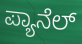
ಪ್ಯಾನೆಲ್